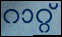
റാറ്റ്